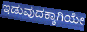
ಇಡುವುದಕ್ಕಾಗಿಯೇ